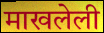
माखलेली